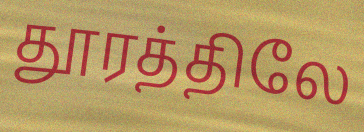
தூரத்திலே